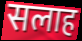
सलाह